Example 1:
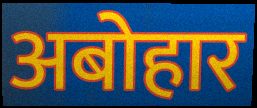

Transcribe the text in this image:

अबोहार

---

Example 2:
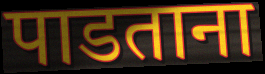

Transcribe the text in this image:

पाडताना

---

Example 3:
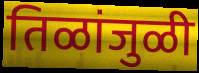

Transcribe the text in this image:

तिळांजुळी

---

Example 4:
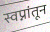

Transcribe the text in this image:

स्वप्नांतून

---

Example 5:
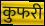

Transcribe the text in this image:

कुफरी